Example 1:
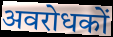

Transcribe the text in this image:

अवरोधकों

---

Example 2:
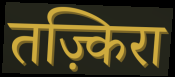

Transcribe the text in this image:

तज़्किरा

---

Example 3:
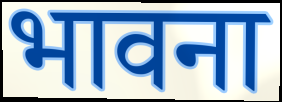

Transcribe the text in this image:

भावना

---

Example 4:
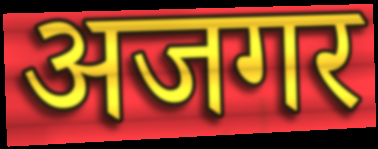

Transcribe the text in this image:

अजगर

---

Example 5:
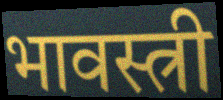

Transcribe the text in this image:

भावस्त्री